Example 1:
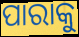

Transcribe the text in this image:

ପାରାକୁ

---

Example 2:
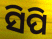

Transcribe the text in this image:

ସିପି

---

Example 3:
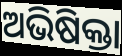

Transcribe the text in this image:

ଅଭିଷିକ୍ତା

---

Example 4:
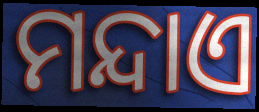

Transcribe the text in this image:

ମନ୍ଦାଏ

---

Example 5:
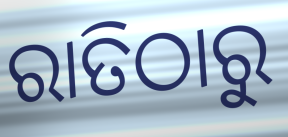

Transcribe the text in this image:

ରାତିଠାରୁ